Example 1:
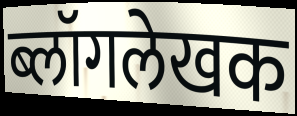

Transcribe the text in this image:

ब्लॉगलेखक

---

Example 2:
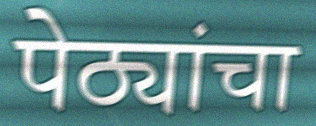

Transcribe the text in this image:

पेठ्यांचा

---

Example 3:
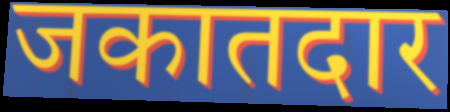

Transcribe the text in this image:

जकातदार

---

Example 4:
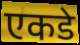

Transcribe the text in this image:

एकडे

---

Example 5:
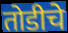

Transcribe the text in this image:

तोडीचे